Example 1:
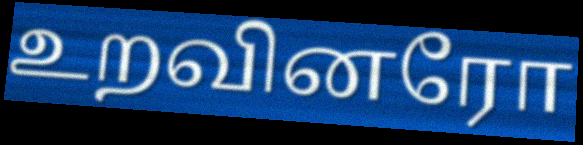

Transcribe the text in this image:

உறவினரோ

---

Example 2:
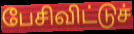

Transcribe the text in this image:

பேசிவிட்டுச்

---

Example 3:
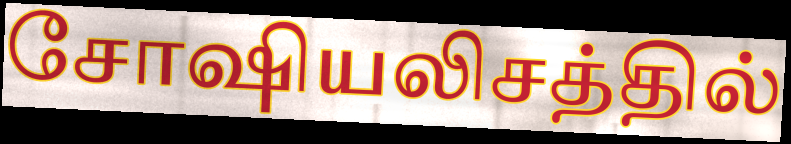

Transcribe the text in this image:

சோஷியலிசத்தில்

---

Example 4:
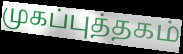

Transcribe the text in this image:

முகப்புத்தகம்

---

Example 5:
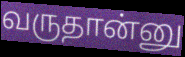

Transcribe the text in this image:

வருதான்னு